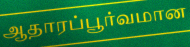
ஆதாரப்பூர்வமான